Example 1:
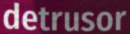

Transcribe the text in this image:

detrusor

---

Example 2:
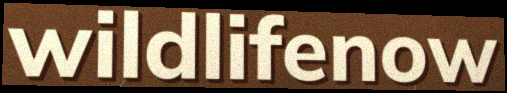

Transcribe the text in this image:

wildlifenow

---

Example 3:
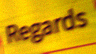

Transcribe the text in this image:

Regards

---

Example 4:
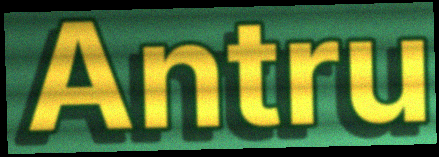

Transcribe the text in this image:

Antru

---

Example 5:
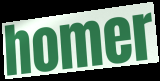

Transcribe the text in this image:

homer